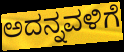
ಅದನ್ನವಳಿಗೆ